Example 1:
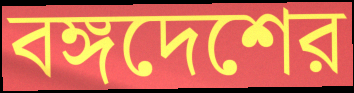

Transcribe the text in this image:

বঙ্গদেশের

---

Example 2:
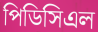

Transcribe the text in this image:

পিডিসিএল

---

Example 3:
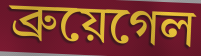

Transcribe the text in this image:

ব্রুয়েগেল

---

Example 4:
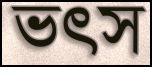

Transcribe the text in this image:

ভৎস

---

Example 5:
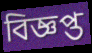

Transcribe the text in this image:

বিজ্ঞপ্ত